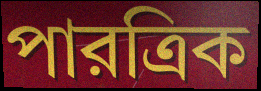
পারত্রিক